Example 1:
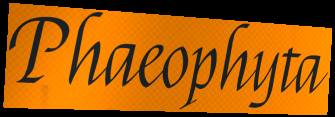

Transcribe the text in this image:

Phaeophyta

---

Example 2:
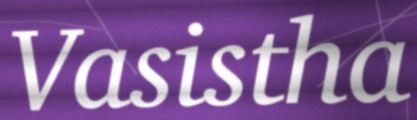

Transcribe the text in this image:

Vasistha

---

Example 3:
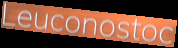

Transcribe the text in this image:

Leuconostoc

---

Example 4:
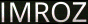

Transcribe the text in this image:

IMROZ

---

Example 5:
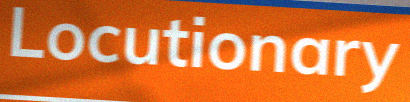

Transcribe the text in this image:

Locutionary